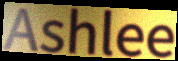
Ashlee